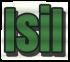
Isil